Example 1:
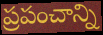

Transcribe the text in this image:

ప్రపంచాన్ని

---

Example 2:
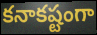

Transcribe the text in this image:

కనాకష్టంగా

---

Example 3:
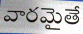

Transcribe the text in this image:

వారమైతే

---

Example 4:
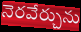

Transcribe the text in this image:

నెరవేర్చును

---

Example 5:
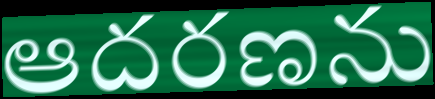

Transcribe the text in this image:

ఆదరణను